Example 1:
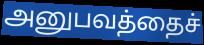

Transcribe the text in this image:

அனுபவத்தைச்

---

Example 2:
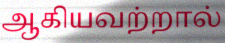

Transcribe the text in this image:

ஆகியவற்றால்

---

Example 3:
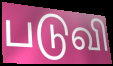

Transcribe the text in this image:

படுவி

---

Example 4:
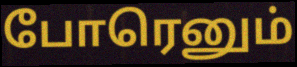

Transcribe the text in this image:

போரெனும்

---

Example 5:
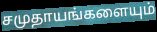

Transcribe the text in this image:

சமுதாயங்களையும்